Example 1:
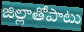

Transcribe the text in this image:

జిల్లాతోపాటు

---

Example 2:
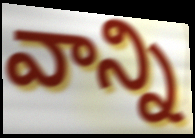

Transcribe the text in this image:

వాన్ని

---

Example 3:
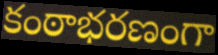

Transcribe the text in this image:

కంఠాభరణంగా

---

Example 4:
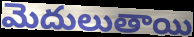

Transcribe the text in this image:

మెదులుతాయి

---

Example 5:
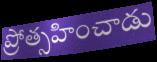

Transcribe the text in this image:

ప్రోత్సహించాడు